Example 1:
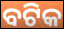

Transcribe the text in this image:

ବଟିକ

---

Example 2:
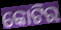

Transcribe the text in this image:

କୋଟିର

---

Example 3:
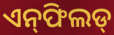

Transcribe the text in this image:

ଏନ୍‌ଫିଲଡ୍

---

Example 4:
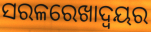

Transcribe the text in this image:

ସରଳରେଖାଦ୍ବୟର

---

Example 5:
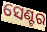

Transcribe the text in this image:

ସେଣ୍ଟର